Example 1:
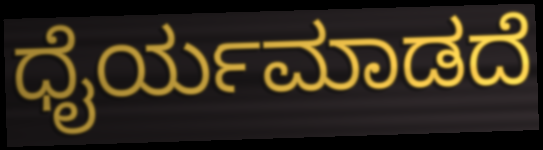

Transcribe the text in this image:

ಧೈರ್ಯಮಾಡದೆ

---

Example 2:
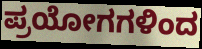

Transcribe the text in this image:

ಪ್ರಯೋಗಗಳಿಂದ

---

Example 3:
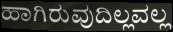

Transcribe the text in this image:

ಹಾಗಿರುವುದಿಲ್ಲವಲ್ಲ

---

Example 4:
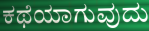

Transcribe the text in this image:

ಕಥೆಯಾಗುವುದು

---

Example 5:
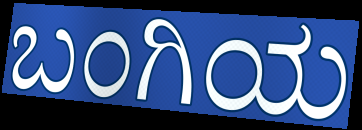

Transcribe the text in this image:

ಬಂಗಿಯ